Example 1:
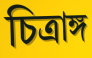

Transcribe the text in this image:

চিত্রাঙ্গ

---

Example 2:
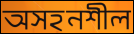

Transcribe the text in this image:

অসহনশীল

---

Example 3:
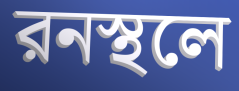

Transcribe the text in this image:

রনস্থলে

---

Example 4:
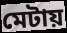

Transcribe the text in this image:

মেটায়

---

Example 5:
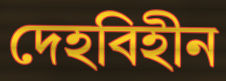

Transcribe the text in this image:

দেহবিহীন